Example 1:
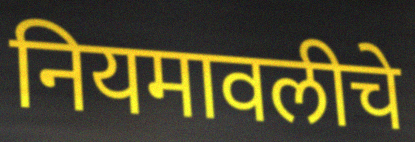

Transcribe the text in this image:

नियमावलीचे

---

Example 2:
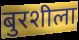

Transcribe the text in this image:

बुरशीला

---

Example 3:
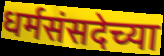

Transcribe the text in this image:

धर्मसंसदेच्या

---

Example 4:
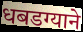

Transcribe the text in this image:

धबडग्याने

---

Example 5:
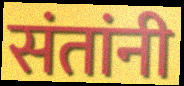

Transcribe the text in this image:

संतांनी